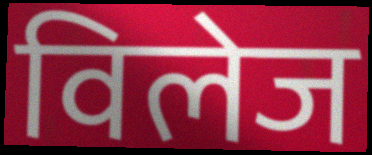
विलेज